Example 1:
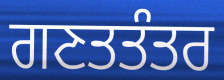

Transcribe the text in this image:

ਗਣਤਤੰਤਰ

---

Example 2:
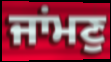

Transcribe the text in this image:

ਜਾਂਮਣੁ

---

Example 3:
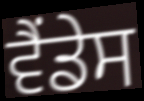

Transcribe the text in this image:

ਵੈਂਡੇਸ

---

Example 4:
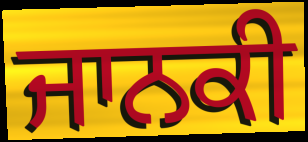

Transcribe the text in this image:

ਜਾਨਕੀ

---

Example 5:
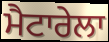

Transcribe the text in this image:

ਮੈਟਾਰੇਲਾ